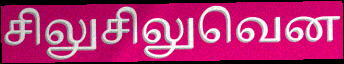
சிலுசிலுவென